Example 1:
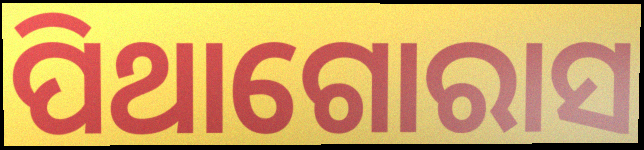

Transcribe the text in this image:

ପିଥାଗୋରାସ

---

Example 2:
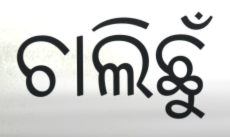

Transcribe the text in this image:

ଚାଲିଛୁଁ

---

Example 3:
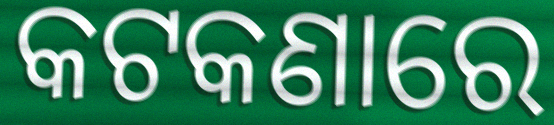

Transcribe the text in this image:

କଟକଣାରେ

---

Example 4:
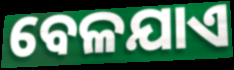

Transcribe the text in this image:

ବେଳଯାଏ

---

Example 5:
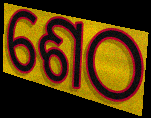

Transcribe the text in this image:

ଶେଠ